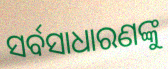
ସର୍ବସାଧାରଣଙ୍କୁ